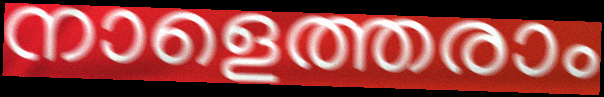
നാളെത്തരാം